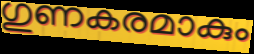
ഗുണകരമാകും